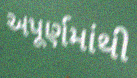
અપૂર્ણમાંથી